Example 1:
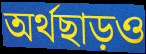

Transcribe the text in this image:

অর্থছাড়ও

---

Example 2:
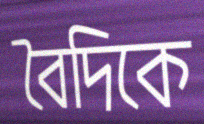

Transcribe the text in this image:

বৈদিকে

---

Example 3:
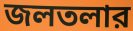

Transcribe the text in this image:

জলতলার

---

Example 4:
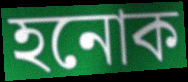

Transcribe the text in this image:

হনোক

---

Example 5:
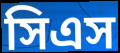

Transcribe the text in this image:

সিএস